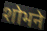
शोभने